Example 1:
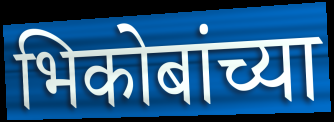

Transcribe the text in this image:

भिकोबांच्या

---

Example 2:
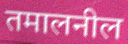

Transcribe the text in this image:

तमालनील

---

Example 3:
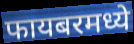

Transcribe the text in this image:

फायबरमध्ये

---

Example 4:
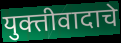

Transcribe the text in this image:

युक्तीवादाचे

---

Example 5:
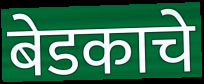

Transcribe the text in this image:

बेडकाचे